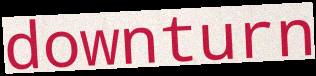
downturn